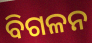
ବିଗଳନ